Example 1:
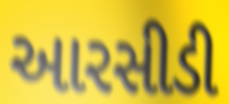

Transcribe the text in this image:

આરસીડી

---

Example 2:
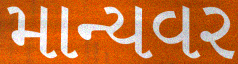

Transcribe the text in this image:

માન્યવર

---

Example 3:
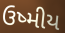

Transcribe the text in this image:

ઉષ્મીય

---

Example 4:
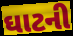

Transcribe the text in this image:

ઘાટની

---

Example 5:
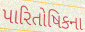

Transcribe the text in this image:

પારિતોષિકના